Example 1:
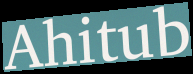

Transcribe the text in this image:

Ahitub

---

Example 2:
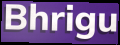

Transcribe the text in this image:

Bhrigu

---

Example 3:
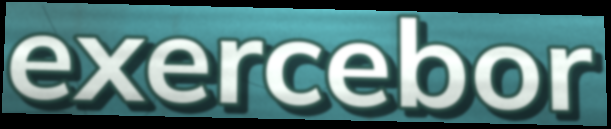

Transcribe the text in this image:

exercebor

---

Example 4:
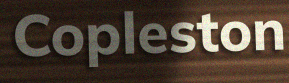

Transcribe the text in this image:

Copleston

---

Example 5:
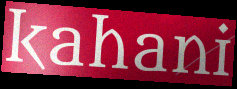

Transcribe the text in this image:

kahani